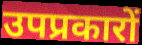
उपप्रकारों